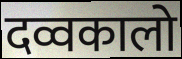
दव्वकालो